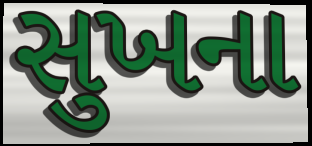
સુખના